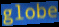
globe